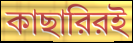
কাছারিরই